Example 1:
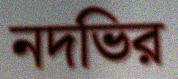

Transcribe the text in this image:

নদভির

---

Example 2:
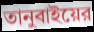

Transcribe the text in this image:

তানুবাইয়ের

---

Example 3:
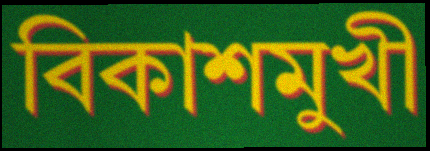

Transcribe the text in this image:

বিকাশমুখী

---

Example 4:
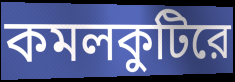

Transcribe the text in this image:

কমলকুটিরে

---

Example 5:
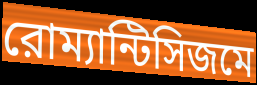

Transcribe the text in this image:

রোম্যান্টিসিজমে